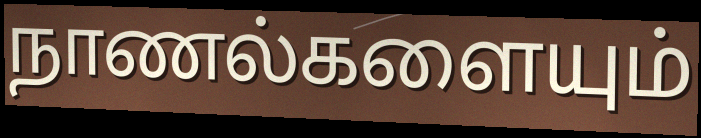
நாணல்களையும்